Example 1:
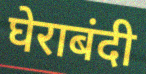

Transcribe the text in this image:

घेराबंदी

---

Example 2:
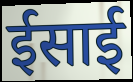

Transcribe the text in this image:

ईसाई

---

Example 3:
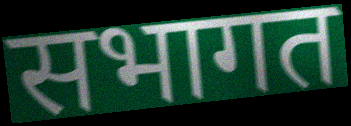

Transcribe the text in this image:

सभागत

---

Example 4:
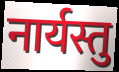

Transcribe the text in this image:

नार्यस्तु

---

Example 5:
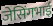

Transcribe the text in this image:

जेसिंगभाई